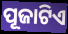
ପୂଜାଟିଏ